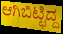
ಆಗಿಬಿಟ್ಟಿದ್ದ